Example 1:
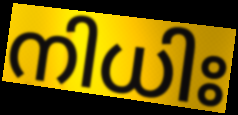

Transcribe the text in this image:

നിധിഃ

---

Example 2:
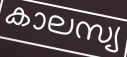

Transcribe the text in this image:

കാലസ്യ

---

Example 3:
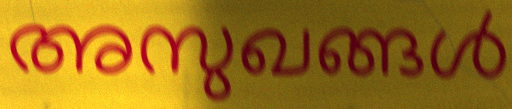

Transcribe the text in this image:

അസുഖങ്ങൾ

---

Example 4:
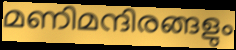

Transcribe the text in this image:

മണിമന്ദിരങ്ങളും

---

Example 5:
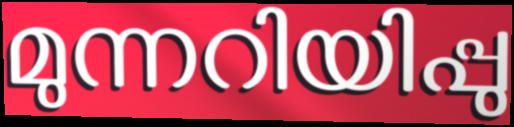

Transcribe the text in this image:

മുന്നറിയിപ്പു